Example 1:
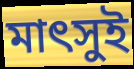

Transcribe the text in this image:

মাৎসুই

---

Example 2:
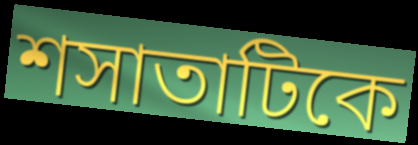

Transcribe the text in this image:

শসাতাটিকে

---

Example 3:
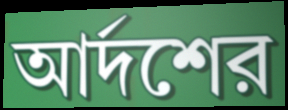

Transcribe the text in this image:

আর্দশের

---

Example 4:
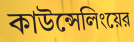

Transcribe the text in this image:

কাউন্সেলিংয়ের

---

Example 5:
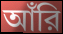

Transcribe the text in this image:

আঁরি